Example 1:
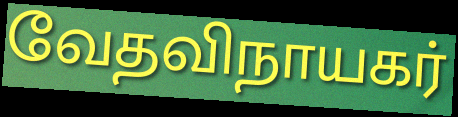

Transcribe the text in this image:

வேதவிநாயகர்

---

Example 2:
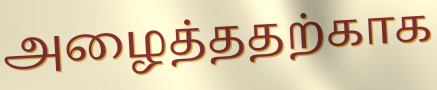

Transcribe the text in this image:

அழைத்ததற்காக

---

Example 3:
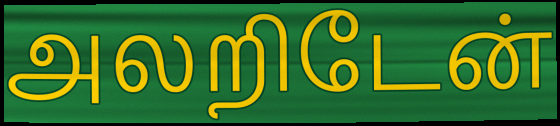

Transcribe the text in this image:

அலறிடேன்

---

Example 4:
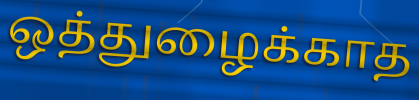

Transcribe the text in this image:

ஒத்துழைக்காத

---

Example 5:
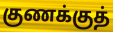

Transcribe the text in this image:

குணக்குத்